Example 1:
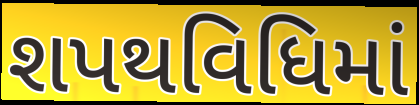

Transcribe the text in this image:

શપથવિધિમાં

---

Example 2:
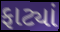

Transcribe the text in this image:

ફાટ્યાં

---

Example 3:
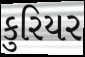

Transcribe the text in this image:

કુરિયર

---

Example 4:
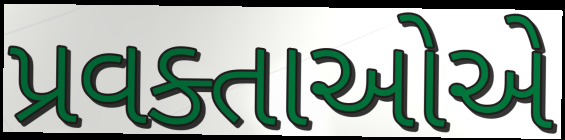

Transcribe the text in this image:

પ્રવક્તાઓએ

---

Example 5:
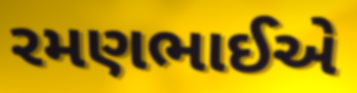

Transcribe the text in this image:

રમણભાઈએ